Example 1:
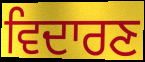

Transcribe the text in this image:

ਵਿਦਾਰਣ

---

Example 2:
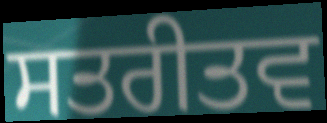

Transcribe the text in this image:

ਸਤਰੀਤਵ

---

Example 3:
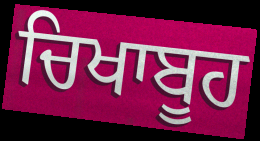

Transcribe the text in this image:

ਚਿਖਾਬੂਹ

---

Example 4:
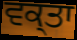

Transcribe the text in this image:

ਵਕ੍ਤਾ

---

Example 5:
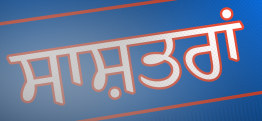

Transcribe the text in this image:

ਸਾਸ਼ਤਰਾਂ